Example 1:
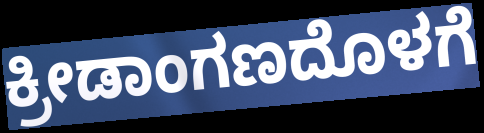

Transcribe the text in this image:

ಕ್ರೀಡಾಂಗಣದೊಳಗೆ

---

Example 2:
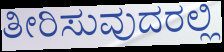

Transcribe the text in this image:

ತೀರಿಸುವುದರಲ್ಲಿ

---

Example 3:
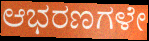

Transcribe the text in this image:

ಆಭರಣಗಳೇ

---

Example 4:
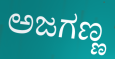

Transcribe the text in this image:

ಅಜಗಣ್ಣ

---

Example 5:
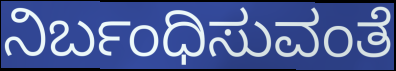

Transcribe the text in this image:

ನಿರ್ಬಂಧಿಸುವಂತೆ